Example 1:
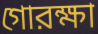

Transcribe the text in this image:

গোরক্ষা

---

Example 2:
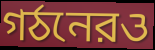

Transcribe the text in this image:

গঠনেরও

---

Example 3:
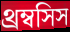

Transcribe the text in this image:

থ্রম্বসিস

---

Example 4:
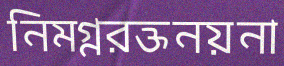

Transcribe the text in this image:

নিমগ্নরক্তনয়না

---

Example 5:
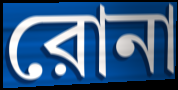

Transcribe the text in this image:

রোনা